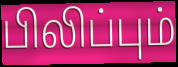
பிலிப்பும்